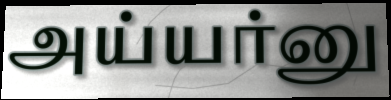
அய்யர்னு